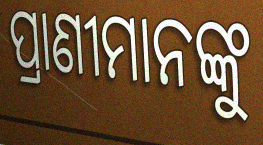
ପ୍ରାଣୀମାନଙ୍କୁ